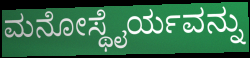
ಮನೋಸ್ಥೈರ್ಯವನ್ನು